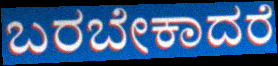
ಬರಬೇಕಾದರೆ